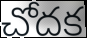
చోదక